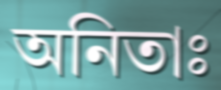
অনিতাঃ